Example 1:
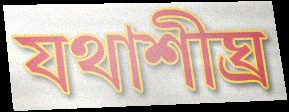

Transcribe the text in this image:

যথাশীঘ্র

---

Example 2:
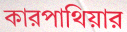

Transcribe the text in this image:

কারপাথিয়ার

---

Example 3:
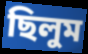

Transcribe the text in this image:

ছিলুম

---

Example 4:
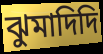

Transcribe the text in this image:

ঝুমাদিদি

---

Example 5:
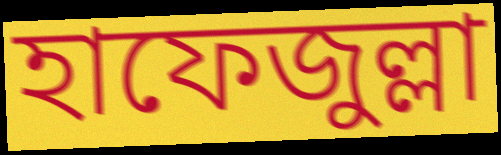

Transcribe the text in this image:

হাফেজুল্লা